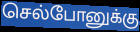
செல்போனுக்கு